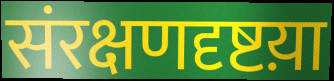
संरक्षणदृष्टय़ा